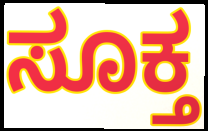
ಸೂಕ್ತ